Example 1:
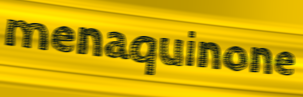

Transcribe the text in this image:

menaquinone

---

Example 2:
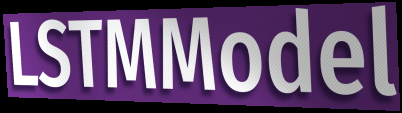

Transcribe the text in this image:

LSTMModel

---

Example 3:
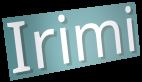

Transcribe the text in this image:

Irimi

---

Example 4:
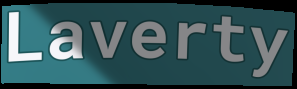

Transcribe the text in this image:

Laverty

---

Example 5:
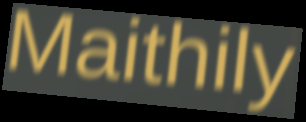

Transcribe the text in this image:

Maithily